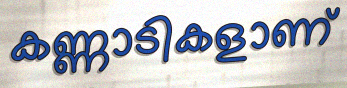
കണ്ണാടികളാണ്